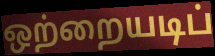
ஒற்றையடிப்